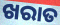
ଖରାତ